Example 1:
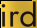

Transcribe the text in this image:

ird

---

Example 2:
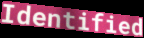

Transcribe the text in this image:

Identified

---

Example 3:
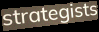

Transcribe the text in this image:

strategists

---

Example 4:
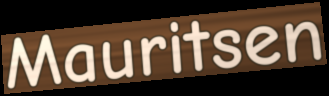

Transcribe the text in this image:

Mauritsen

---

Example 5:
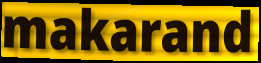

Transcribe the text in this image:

makarand